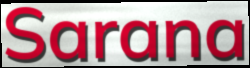
Sarana